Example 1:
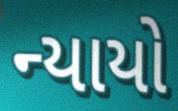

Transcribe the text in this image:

ન્યાયો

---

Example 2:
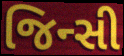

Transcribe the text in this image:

જિન્સી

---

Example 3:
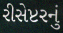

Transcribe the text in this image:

રીસેપ્ટરનું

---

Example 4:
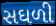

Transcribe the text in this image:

સઘળી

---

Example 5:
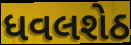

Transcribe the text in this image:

ધવલશેઠ